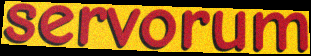
servorum